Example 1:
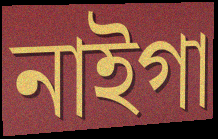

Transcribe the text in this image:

নাইগা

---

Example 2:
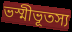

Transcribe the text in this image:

ভস্মীভূতস্য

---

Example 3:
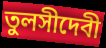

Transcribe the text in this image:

তুলসীদেবী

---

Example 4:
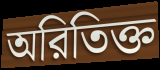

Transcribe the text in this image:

অরিতিক্ত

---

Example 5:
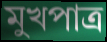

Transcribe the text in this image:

মুখপাত্র